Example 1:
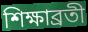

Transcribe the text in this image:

শিক্ষাব্রতী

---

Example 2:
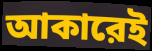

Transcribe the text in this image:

আকারেই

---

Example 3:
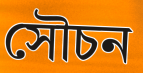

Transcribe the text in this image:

সৌচন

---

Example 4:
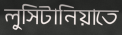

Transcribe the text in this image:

লুসিটানিয়াতে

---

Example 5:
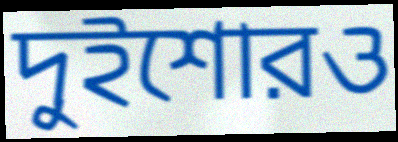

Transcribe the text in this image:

দুইশোরও